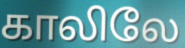
காலிலே